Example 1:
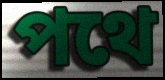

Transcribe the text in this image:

পথে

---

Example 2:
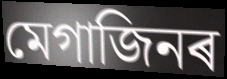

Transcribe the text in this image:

মেগাজিনৰ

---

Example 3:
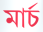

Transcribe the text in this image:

মাৰ্চ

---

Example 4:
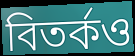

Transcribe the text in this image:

বিতৰ্কও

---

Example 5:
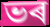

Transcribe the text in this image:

ভৰ